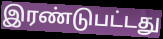
இரண்டுபட்டது